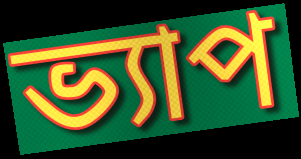
ভ্যাপ